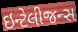
ઇન્ટેલીજન્સ